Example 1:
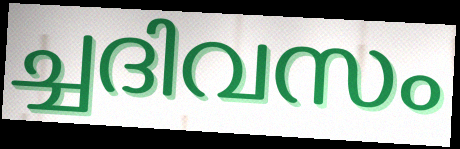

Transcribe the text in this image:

ച്ചദിവസം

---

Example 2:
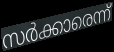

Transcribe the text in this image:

സർക്കാരെന്ന്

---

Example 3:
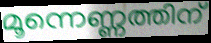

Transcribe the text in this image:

മൂന്നെണ്ണത്തിന്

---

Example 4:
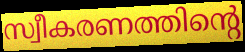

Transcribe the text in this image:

സ്വീകരണത്തിന്റെ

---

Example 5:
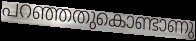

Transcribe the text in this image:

പറഞ്ഞതുകൊണ്ടാണു